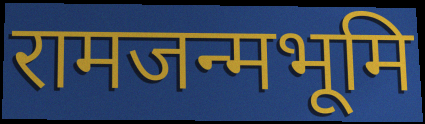
रामजन्मभूमि